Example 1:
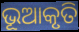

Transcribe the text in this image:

ଭୂଆକୃତି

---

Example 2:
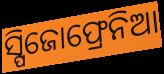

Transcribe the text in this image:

ସ୍ପିଜୋଫ୍ରେନିଆ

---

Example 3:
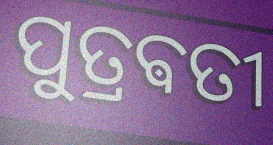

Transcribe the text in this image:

ପୁତ୍ରଵତୀ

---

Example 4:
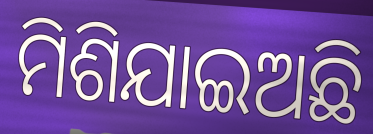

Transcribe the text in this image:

ମିଶିଯାଇଅଛି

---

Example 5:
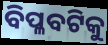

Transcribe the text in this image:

ବିପ୍ଳବଟିକୁ